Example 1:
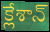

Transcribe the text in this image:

క్లేశాన్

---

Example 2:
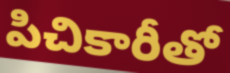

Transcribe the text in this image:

పిచికారీతో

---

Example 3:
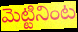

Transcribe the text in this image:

మెట్టినింట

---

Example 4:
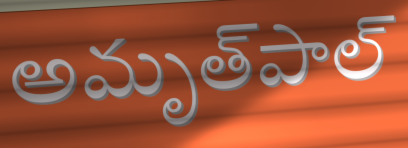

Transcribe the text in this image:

అమృత్‌పాల్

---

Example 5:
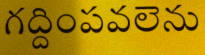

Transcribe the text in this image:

గద్దింపవలెను